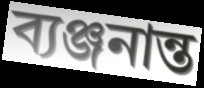
ব্যঞ্জনান্ত